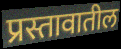
प्रस्तावातील